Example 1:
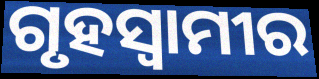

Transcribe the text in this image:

ଗୃହସ୍ୱାମୀର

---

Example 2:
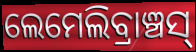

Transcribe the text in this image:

ଲେମେଲିବ୍ରାଞ୍ଚସ୍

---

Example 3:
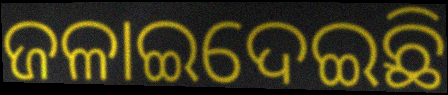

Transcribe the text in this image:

ଜଳାଇଦେଇଛି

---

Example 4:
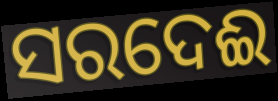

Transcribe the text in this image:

ସରଦେଈ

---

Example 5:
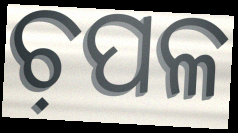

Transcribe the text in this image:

ଚ଼ପଳ